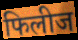
फिलीज